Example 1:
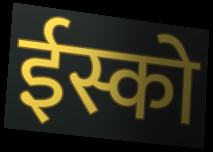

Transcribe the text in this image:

ईस्को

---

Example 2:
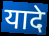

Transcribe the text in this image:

यादे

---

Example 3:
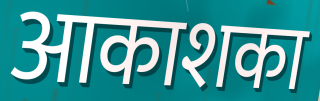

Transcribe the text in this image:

आकाशका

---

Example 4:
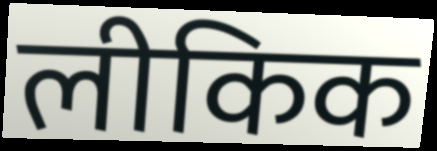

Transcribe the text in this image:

लीकिक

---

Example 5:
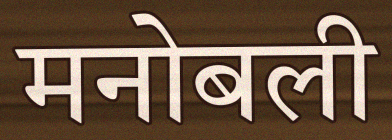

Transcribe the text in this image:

मनोबली